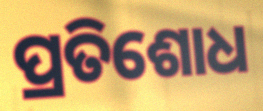
ପ୍ରତିଶୋଧ